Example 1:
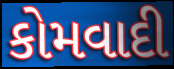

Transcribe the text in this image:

કોમવાદી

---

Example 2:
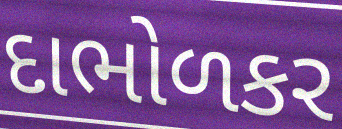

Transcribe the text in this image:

દાભોળકર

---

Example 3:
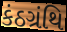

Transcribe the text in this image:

કંઠગ્રંથિ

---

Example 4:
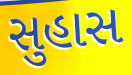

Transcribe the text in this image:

સુહાસ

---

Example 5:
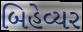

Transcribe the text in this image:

બિહેવ્યર